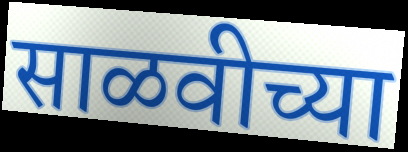
साळवीच्या